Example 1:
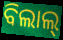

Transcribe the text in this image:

ବିଲାଲ୍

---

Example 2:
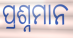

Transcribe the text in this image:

ପ୍ରଶ୍ନମାନ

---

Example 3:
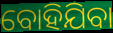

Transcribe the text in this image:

ବୋହିଯିବା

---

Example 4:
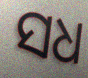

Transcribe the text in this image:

ସଧ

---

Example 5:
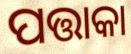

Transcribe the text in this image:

ପତ୍ତାକା